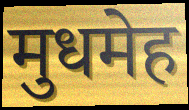
मुधमेह